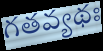
గతవ్యథః